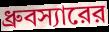
ধ্রুবস্যারের